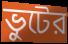
ভুটের